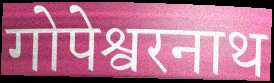
गोपेश्वरनाथ